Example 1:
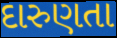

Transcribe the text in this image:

દારુણતા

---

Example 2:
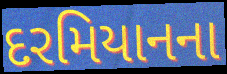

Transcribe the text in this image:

દરમિયાનના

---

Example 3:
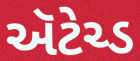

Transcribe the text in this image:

ઍટેચ્ડ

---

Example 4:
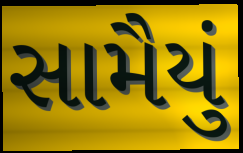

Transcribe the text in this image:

સામૈયું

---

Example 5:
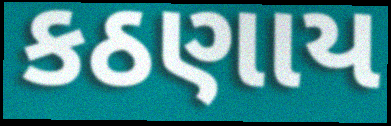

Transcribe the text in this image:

કઠણાય